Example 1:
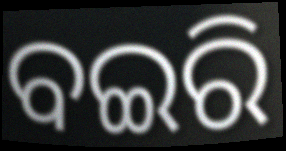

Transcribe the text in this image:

ବଇରି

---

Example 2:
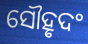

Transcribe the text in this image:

ସୌହୃଦଂ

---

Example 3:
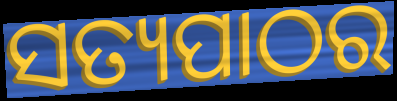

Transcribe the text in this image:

ସତ୍ୟପାଠର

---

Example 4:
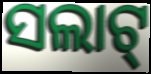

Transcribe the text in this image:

ସଲାଟ୍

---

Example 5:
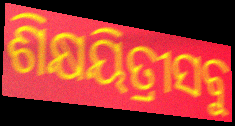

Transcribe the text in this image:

ଶିକ୍ଷୟିତ୍ରୀସବୁ